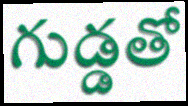
గుడ్డతో